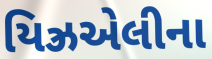
યિઝ્રએલીના